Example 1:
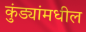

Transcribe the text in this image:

कुंड्यांमधील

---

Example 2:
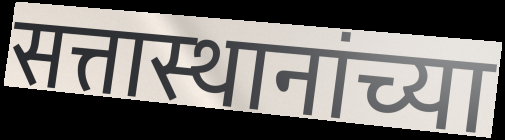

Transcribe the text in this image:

सत्तास्थानांच्या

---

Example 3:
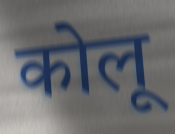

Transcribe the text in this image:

कोलू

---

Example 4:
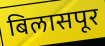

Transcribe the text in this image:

बिलासपूर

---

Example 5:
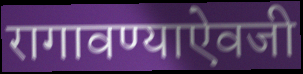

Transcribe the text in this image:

रागावण्याऐवजी